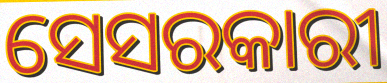
ସେସରକାରୀ